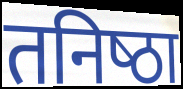
तनिष्‍ठा